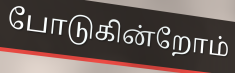
போடுகின்றோம்